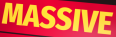
MASSIVE